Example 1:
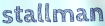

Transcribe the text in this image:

stallman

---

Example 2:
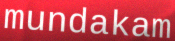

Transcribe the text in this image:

mundakam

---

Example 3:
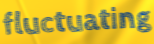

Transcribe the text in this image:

fluctuating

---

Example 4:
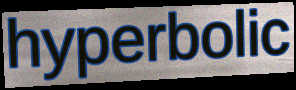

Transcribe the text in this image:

hyperbolic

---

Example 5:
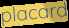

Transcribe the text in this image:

placard